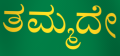
ತಮ್ಮದೇ